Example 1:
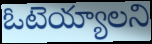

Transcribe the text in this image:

ఓటెయ్యాలని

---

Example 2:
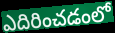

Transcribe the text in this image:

ఎదిరించడంలో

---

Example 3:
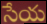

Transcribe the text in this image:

సేయ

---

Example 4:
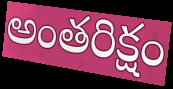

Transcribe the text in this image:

అంతరిక్షం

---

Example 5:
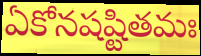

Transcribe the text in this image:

ఏకోనషష్టితమః